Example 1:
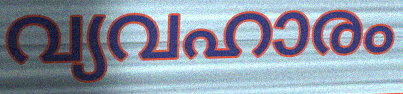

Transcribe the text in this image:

വ്യവഹാരം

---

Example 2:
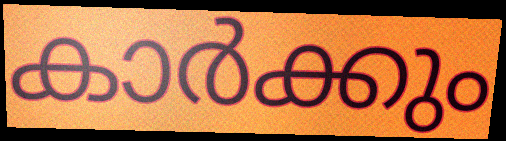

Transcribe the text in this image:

കാർക്കും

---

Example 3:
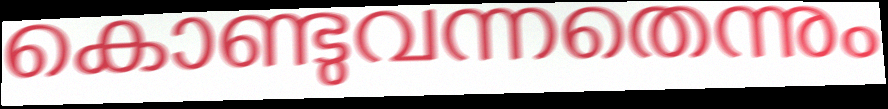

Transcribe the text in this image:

കൊണ്ടുവന്നതെന്നും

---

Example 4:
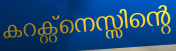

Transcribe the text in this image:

കറക്റ്റ്നെസ്സിന്റെ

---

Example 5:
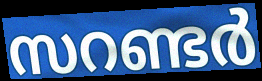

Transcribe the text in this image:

സറണ്ടർ